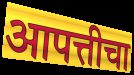
आपत्तीचा